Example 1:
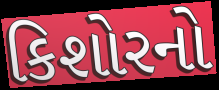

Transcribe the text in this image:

કિશોરનો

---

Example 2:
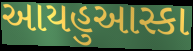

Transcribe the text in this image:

આયહુઆસ્કા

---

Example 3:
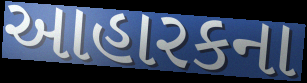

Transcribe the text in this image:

આહારકના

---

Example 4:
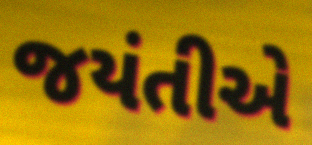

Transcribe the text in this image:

જયંતીએ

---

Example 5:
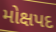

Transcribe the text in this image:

મોક્ષપદ